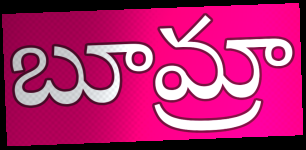
బూమ్రా